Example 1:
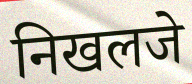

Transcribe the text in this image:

निखलजे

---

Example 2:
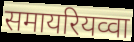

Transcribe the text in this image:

समायरियव्वा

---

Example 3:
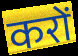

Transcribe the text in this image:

करों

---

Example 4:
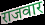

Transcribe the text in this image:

राजवार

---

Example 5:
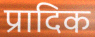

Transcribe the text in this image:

प्रादिक